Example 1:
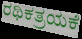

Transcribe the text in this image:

ರಥಿಕತ್ರಯಕೆ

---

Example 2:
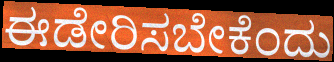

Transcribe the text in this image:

ಈಡೇರಿಸಬೇಕೆಂದು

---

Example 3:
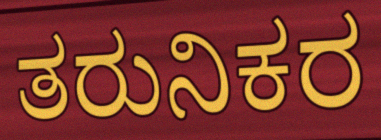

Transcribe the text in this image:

ತರುನಿಕರ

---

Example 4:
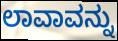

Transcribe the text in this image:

ಲಾವಾವನ್ನು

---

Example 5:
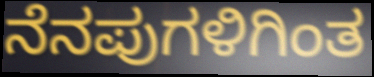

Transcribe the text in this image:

ನೆನಪುಗಳಿಗಿಂತ